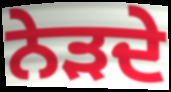
ਨੇੜਦੇ